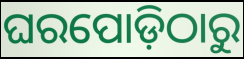
ଘରପୋଡ଼ିଠାରୁ